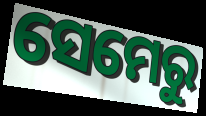
ସେମେରୁ